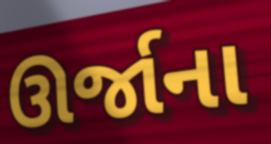
ઊર્જાના